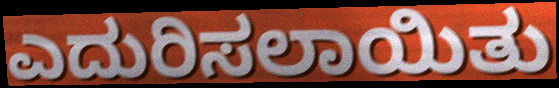
ಎದುರಿಸಲಾಯಿತು